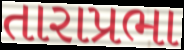
તારાપ્રભા